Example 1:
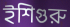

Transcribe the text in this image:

ইশিগুরু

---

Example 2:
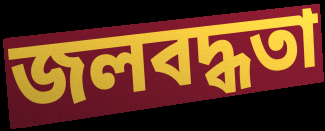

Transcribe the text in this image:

জলবদ্ধতা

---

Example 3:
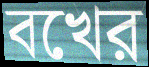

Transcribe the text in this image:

বখের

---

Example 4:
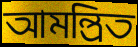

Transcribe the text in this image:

আমন্ত্রিত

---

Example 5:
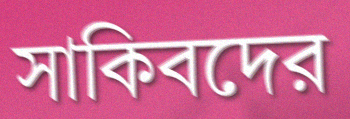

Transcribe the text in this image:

সাকিবদের